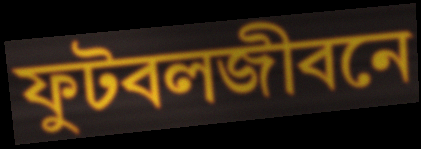
ফুটবলজীবনে